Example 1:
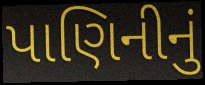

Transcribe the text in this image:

પાણિનીનું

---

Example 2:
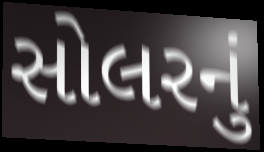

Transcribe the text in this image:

સોલરનું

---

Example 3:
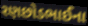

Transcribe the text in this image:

રણછોડભાઈના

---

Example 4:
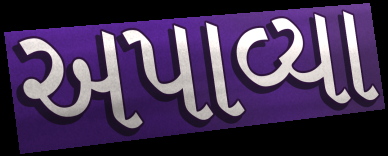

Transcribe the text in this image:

અપાવ્યા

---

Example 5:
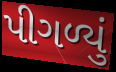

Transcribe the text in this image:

પીગળ્યું